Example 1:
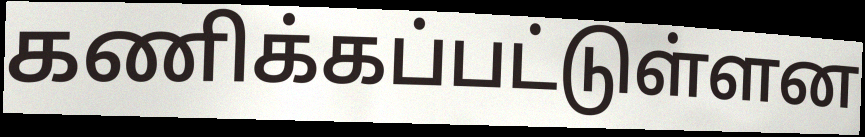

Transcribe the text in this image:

கணிக்கப்பட்டுள்ளன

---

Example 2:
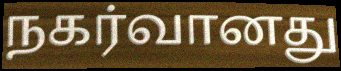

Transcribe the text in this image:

நகர்வானது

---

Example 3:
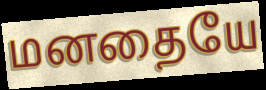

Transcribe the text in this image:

மனதையே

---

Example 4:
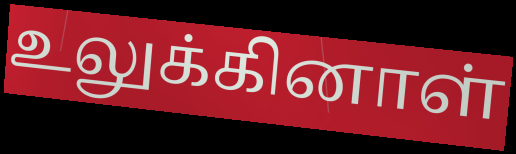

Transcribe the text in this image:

உலுக்கினாள்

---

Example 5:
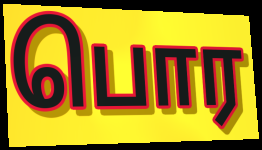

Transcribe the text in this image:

பொர